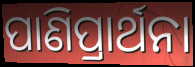
ପାଣିପ୍ରାର୍ଥନା